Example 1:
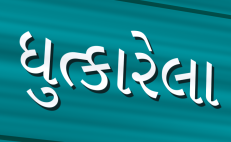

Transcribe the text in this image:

ધુત્કારેલા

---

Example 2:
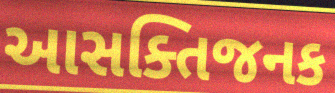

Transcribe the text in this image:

આસક્તિજનક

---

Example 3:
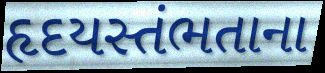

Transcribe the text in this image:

હૃદયસ્તંભતાના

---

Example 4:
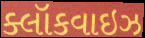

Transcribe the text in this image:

ક્લૉકવાઇઝ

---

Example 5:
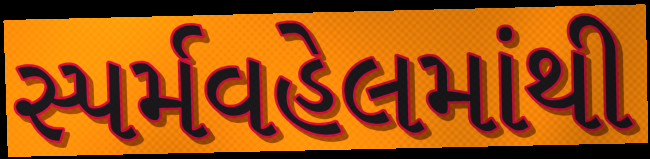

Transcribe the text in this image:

સ્પર્મવહેલમાંથી